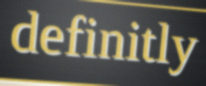
definitly